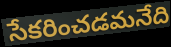
సేకరించడమనేది